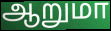
ஆறுமா